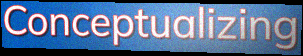
Conceptualizing